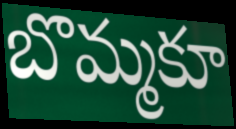
బొమ్మకూ